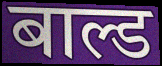
बाल्ड